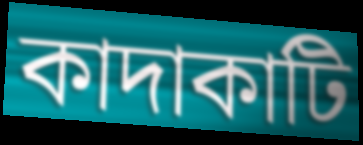
কাদাকাটি